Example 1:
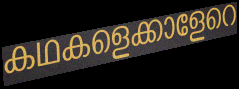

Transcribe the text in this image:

കഥകളെക്കാളേറെ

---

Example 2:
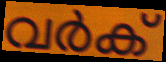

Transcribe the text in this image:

വർക്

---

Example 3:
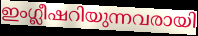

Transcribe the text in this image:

ഇംഗ്ലീഷറിയുന്നവരായി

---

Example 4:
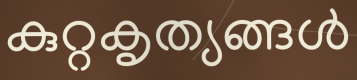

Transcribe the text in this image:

കുറ്റകൃത്യങ്ങൾ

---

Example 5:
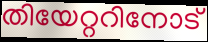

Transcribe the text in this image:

തിയേറ്ററിനോട്